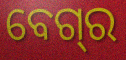
ବେଗ୍‌ର